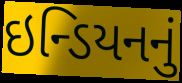
ઇન્ડિયનનું